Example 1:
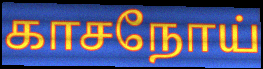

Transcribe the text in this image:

காசநோய்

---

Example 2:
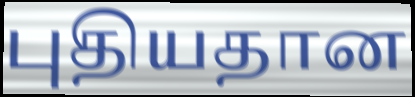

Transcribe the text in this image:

புதியதான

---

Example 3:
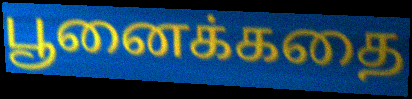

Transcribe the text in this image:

பூனைக்கதை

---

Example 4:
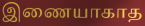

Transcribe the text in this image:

இணையாகாத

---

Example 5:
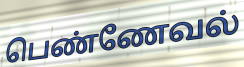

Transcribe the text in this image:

பெண்ணேவல்